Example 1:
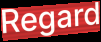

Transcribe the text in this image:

Regard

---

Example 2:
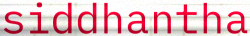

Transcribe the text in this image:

siddhantha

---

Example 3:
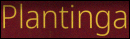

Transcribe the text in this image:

Plantinga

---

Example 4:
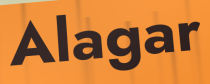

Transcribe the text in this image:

Alagar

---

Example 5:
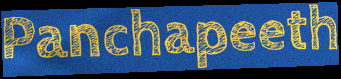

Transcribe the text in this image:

Panchapeeth